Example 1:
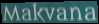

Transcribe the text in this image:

Makvana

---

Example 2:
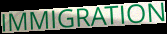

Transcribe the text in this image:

IMMIGRATION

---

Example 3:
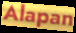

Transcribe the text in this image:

Alapan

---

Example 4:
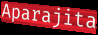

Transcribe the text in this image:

Aparajita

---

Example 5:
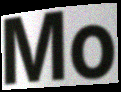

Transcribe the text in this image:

Mo